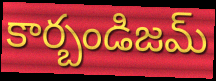
కార్బండిజమ్